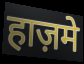
हाज़मे